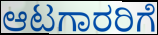
ಆಟಗಾರರಿಗೆ